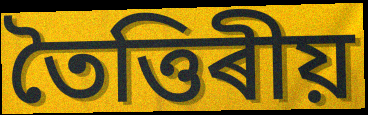
তৈত্তিৰীয়